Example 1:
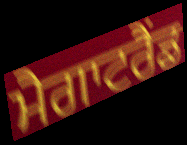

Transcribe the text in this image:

ਮੈਗਾਟਰੈਂਡ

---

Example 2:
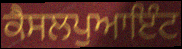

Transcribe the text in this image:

ਕੈਸਲਪੁਆਇੰਟ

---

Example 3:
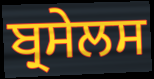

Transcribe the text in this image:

ਬ੍ਰਸੇਲਸ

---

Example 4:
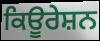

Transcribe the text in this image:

ਕਿਊਰੇਸ਼ਨ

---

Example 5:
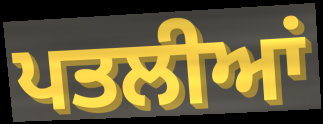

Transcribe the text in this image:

ਪਤਲੀਆਂ